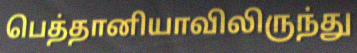
பெத்தானியாவிலிருந்து